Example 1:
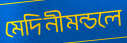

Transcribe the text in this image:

মেদিনীমন্ডলে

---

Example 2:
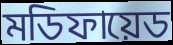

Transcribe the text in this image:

মডিফায়েড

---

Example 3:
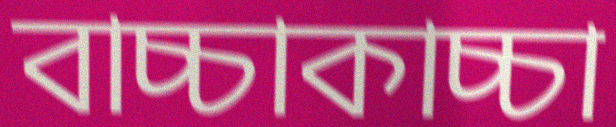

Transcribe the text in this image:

বাচ্চাকাচ্চা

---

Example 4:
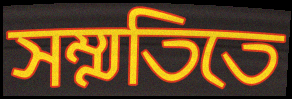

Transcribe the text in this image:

সম্মতিতে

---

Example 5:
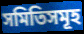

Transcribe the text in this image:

সমিতিসমূহ